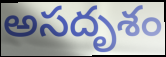
అసదృశం